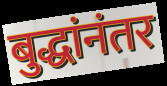
बुद्धांनंतर